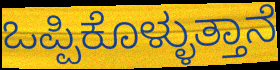
ಒಪ್ಪಿಕೊಳ್ಳುತ್ತಾನೆ